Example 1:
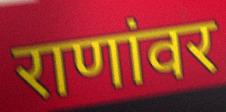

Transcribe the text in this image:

राणांवर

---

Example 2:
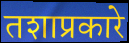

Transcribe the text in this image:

तशाप्रकारे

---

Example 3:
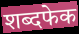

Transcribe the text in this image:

शब्दफेक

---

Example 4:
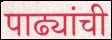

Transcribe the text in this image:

पाढ्यांची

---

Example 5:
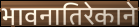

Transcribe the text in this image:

भावनातिरेकाने